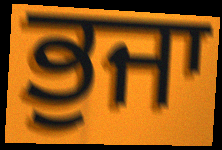
ਭੁਜਾ